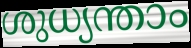
ശുധ്യന്താം